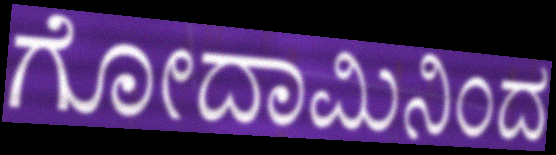
ಗೋದಾಮಿನಿಂದ